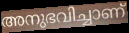
അനുഭവിച്ചാണ്